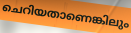
ചെറിയതാണെങ്കിലും